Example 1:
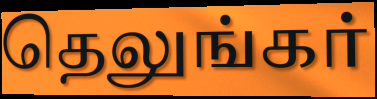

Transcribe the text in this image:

தெலுங்கர்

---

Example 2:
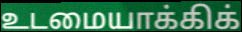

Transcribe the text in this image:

உடமையாக்கிக்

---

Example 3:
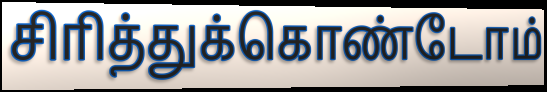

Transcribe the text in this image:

சிரித்துக்கொண்டோம்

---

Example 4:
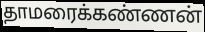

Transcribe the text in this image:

தாமரைக்கண்ணன்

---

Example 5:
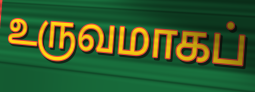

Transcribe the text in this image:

உருவமாகப்